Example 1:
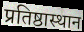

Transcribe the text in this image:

प्रतिष्ठास्थान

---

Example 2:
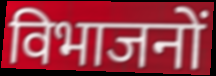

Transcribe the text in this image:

विभाजनों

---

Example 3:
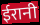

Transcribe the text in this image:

ईरानी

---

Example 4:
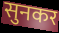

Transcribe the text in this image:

सुनकर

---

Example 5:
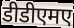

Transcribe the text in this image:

डीडीएमए